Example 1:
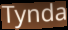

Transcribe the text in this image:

Tynda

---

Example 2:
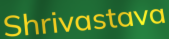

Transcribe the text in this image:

Shrivastava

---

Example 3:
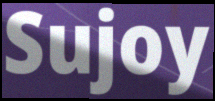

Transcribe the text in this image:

Sujoy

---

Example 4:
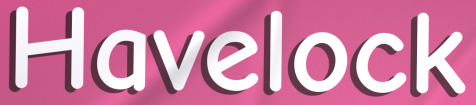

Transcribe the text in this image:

Havelock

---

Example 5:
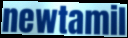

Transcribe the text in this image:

newtamil